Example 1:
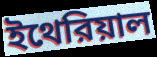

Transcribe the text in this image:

ইথেরিয়াল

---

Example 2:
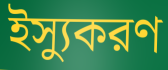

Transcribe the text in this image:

ইস্যুকরণ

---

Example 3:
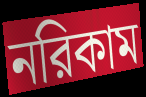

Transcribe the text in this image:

নরিকাম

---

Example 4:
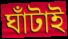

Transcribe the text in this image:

ঘাঁটাই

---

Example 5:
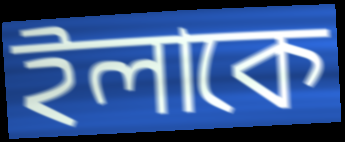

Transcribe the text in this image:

ইলাকে